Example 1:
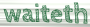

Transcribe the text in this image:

waiteth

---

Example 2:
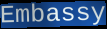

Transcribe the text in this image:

Embassy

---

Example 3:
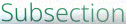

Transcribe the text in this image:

Subsection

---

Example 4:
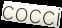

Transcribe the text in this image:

cocci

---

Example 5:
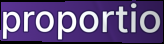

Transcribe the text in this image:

proportio